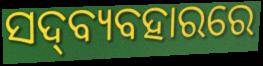
ସଦ୍‍ବ୍ୟବହାରରେ